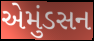
એમુંડસન